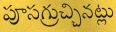
పూసగ్రుచ్చినట్లు